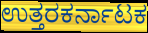
ಉತ್ತರಕರ್ನಾಟಕ